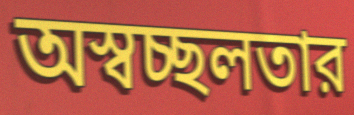
অস্বচ্ছলতার